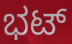
ಭಟ್